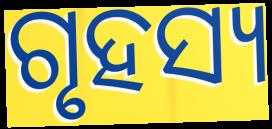
ଗୃହସ୍ୟ